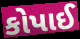
કોપાઈ